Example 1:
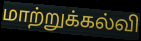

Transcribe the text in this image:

மாற்றுக்கல்வி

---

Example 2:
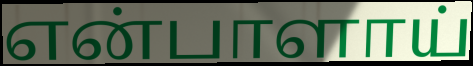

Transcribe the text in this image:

என்பாளாய்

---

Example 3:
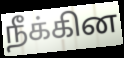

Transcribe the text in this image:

நீக்கின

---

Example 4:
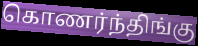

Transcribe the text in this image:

கொணர்ந்திங்கு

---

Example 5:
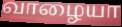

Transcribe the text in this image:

வாழையா